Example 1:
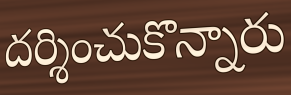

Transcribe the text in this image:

దర్శించుకొన్నారు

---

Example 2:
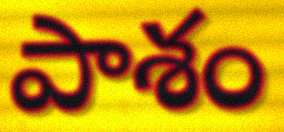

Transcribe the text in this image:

పాశం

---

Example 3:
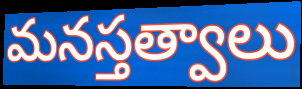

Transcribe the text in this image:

మనస్తత్వాలు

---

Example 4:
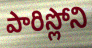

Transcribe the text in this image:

పారిస్లోని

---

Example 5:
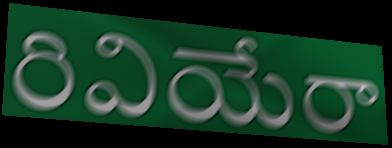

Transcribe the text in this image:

రివియేరా